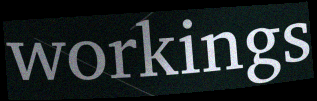
workings